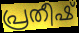
പ്രതീഷ്